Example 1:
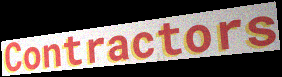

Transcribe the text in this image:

Contractors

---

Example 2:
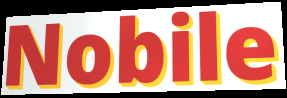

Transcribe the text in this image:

Nobile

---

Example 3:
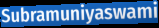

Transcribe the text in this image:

Subramuniyaswami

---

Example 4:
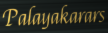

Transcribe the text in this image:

Palayakarars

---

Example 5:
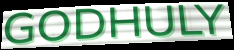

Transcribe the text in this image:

GODHULY